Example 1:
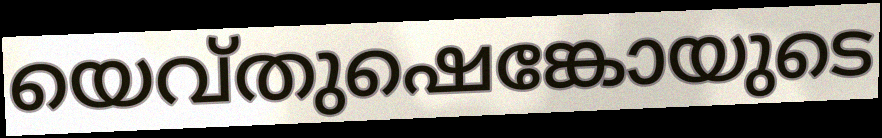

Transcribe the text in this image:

യെവ്തുഷെങ്കോയുടെ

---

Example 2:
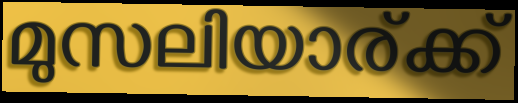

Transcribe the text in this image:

മുസലിയാര്ക്ക്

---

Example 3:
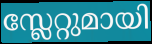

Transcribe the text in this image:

സ്ലേറ്റുമായി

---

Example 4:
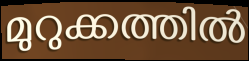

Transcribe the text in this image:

മുറുക്കത്തിൽ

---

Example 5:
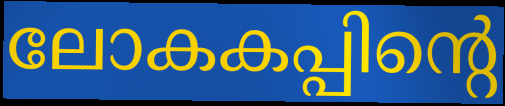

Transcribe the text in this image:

ലോകകപ്പിന്റെ